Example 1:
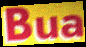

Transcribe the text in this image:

Bua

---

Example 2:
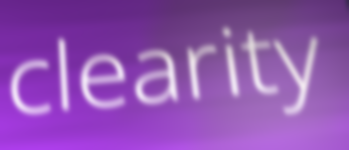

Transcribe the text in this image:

clearity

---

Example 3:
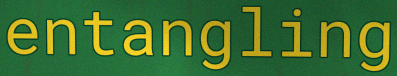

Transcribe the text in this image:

entangling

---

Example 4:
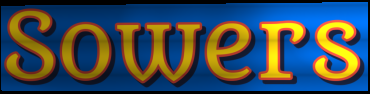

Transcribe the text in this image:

Sowers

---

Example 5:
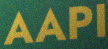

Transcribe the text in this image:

AAPI